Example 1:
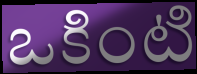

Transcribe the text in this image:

ఒకింటి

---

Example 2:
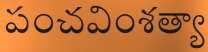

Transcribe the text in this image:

పంచవింశత్యా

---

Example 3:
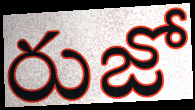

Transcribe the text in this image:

రుజో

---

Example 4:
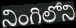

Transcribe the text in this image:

నింగిలోని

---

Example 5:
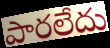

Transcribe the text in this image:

పారలేదు